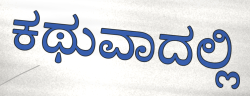
ಕಥುವಾದಲ್ಲಿ